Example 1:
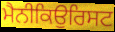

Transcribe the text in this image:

ਮੈਨੀਕਿਉਰਿਸਟ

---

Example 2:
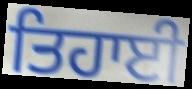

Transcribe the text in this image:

ਤਿਹਾਈ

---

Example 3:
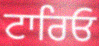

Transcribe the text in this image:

ਟਾਰਿਓ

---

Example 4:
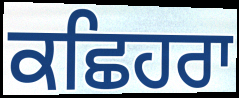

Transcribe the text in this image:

ਕਛਿਹਰਾ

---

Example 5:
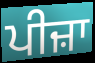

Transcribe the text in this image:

ਪੀਜ਼ਾ